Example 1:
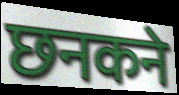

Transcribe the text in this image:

छनकने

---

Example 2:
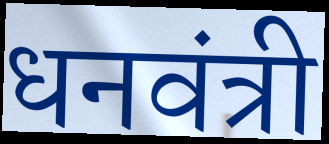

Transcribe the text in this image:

धनवंत्री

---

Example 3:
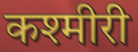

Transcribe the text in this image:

कश्‍मीरी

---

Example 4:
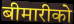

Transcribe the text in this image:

बीमारीको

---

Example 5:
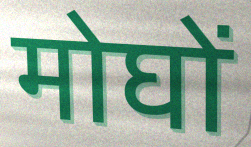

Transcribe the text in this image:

मोघों